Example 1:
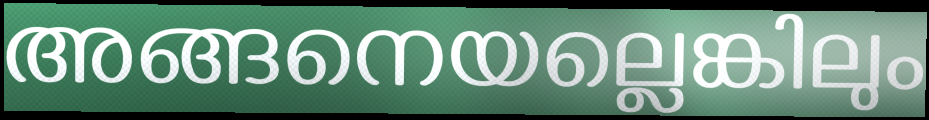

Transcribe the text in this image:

അങ്ങനെയല്ലെങ്കിലും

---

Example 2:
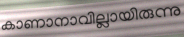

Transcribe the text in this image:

കാണാനാവില്ലായിരുന്നു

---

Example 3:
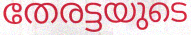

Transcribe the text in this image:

തേരട്ടയുടെ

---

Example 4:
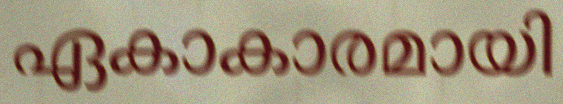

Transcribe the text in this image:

ഏകാകാരമായി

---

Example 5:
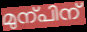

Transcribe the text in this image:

മുന്പിന്